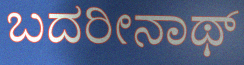
ಬದರೀನಾಥ್